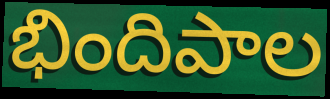
భిందిపాల